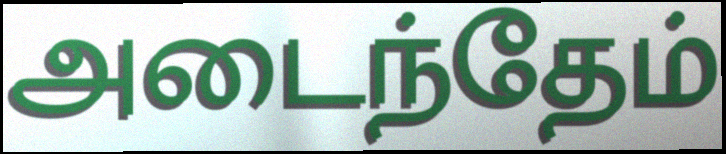
அடைந்தேம்